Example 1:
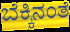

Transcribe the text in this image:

ಬೆಕ್ಕಿನಂತೆ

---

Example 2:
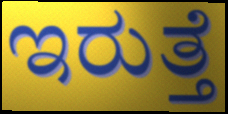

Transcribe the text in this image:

ಇರುತ್ತೆ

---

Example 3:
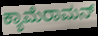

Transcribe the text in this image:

ಕ್ಯಾಮೆರಾಮನ್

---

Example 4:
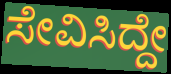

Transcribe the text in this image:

ಸೇವಿಸಿದ್ದೇ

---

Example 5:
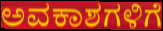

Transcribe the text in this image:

ಅವಕಾಶಗಳಿಗೆ